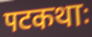
पटकथाः